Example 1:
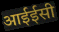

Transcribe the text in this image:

आईईसी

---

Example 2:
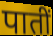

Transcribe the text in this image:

पातीं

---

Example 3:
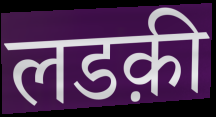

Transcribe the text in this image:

लडक़ी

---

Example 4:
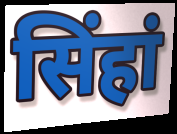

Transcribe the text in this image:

सिंहां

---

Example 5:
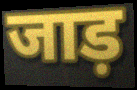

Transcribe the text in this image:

जाड़